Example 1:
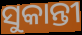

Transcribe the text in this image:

ସୁକାନ୍ତୀ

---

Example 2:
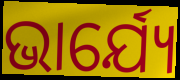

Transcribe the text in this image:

ଭାର୍ଯ୍ଯେ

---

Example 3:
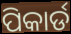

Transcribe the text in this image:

ପିକାର୍ଡ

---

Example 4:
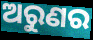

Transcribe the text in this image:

ଅରୁଣର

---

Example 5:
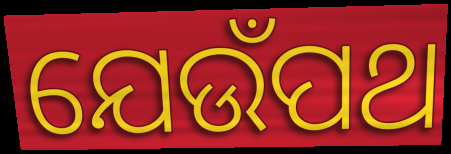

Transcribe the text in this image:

ଯେଉଁପଥ